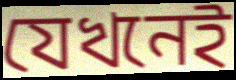
যেখনেই